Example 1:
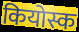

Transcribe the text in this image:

कियोस्क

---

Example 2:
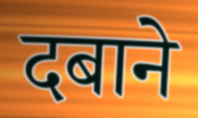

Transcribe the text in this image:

दबाने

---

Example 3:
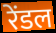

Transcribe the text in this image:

रेंडल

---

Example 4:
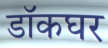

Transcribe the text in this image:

डॉकघर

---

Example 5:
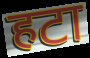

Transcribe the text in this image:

हटा